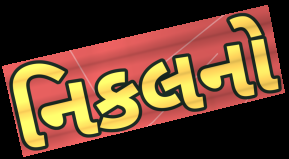
નિકલનો